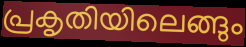
പ്രകൃതിയിലെങ്ങും